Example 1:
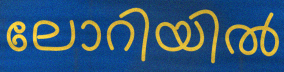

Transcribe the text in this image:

ലോറിയിൽ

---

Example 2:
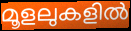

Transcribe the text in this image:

മൂളലുകളിൽ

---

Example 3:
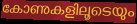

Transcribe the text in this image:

കോണുകളിലൂടെയും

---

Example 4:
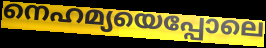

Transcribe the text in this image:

നെഹമ്യയെപ്പോലെ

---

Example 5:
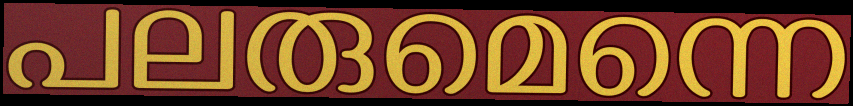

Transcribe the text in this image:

പലരുമെന്നെ